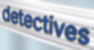
detectives